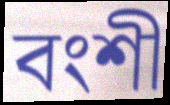
বংশী